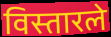
विस्तारले